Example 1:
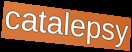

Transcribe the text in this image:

catalepsy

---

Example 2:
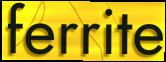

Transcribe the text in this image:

ferrite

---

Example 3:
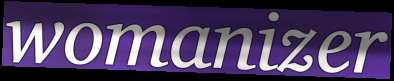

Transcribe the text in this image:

womanizer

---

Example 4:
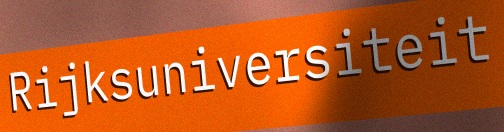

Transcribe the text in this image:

Rijksuniversiteit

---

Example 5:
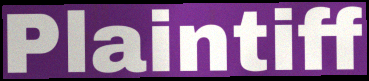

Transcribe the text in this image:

Plaintiff